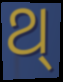
ଥ୍